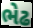
ભેઢ